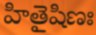
హితైషిణః